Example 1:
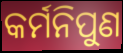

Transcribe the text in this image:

କର୍ମନିପୁଣ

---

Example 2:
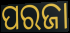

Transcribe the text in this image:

ପରଜା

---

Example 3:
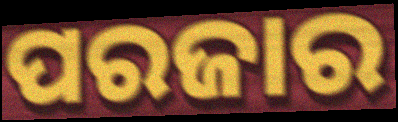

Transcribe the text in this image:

ପରଜାର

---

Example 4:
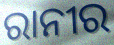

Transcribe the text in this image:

ରାନୀର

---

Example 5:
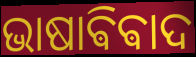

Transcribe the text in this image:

ଭାଷାଵିଵାଦ